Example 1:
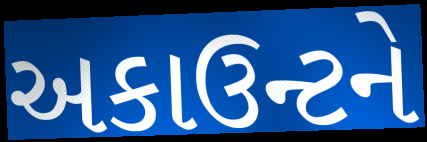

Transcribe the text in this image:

અકાઉન્ટને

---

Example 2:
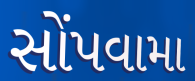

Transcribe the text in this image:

સોંપવામા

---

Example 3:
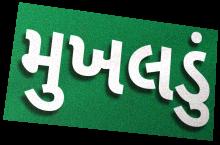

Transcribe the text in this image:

મુખલડું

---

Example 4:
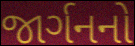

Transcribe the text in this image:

જાર્ગનનો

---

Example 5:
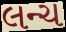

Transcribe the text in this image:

લન્ચ